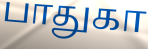
பாதுகா